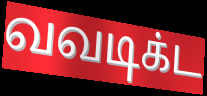
வவடிக்ட